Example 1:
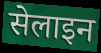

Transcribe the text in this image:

सेलाइन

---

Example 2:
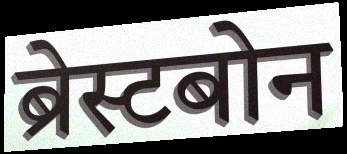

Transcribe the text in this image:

ब्रेस्टबोन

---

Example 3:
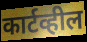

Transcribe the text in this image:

कार्टव्हील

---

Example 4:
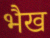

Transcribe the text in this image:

भैख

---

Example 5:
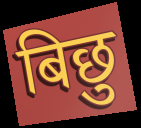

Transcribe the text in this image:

बिछु